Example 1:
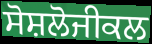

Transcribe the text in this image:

ਸੋਸ਼ਲੋਜੀਕਲ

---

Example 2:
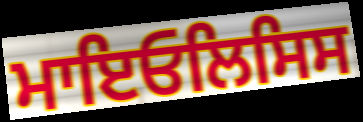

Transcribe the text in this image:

ਮਾਇਓਲਿਸਿਸ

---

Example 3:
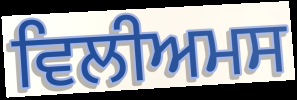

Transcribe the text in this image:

ਵਿਲੀਅਮਸ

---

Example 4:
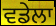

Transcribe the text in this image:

ਵਡੇਲਾ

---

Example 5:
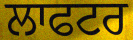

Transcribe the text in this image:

ਲਾਫਟਰ